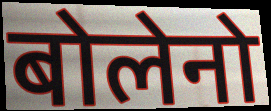
बोलेनो